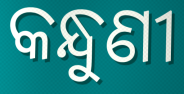
କନ୍ଧୁଣୀ